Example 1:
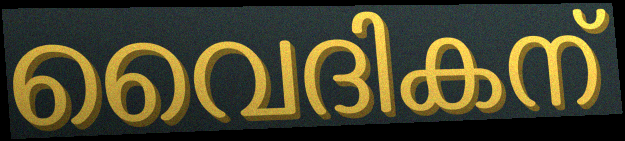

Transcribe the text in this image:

വൈദികന്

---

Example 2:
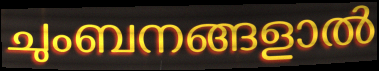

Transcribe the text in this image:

ചുംബനങ്ങളാൽ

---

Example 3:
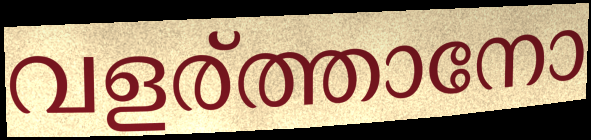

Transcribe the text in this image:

വളര്ത്താനോ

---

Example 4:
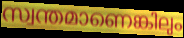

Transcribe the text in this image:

സ്വന്തമാണെങ്കിലും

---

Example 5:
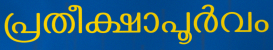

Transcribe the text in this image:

പ്രതീക്ഷാപൂർവം